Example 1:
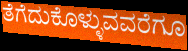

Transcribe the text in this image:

ತೆಗೆದುಕೊಳ್ಳುವವರೆಗೂ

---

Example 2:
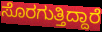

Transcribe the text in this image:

ಸೊರಗುತ್ತಿದ್ದಾರೆ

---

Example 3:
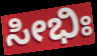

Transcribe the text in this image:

ಸೀಭಿಃ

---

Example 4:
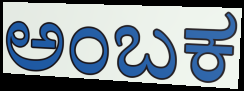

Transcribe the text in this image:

ಅಂಬಕ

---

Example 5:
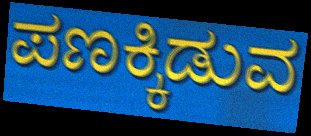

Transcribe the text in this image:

ಪಣಕ್ಕಿಡುವ